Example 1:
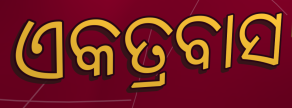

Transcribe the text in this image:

ଏକତ୍ରବାସ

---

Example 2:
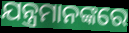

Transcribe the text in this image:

ଯନ୍ତ୍ରମାନଙ୍କରେ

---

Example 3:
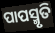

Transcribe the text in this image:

ପାପସ୍ମୃତି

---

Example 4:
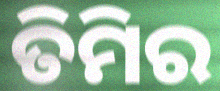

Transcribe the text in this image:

ତିମିର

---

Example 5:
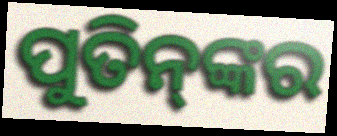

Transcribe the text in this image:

ପୁତିନ୍‌ଙ୍କର